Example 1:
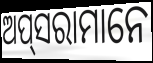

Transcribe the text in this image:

ଅପ୍‌ସରାମାନେ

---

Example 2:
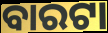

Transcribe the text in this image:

ବାରଟା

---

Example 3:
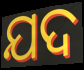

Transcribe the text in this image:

ଯଦ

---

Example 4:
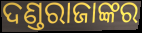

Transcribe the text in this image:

ଦଣ୍ଡରାଜାଙ୍କର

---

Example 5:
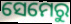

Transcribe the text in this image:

ସେମେରୁ